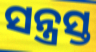
ସନ୍ତ୍ରସ୍ତ